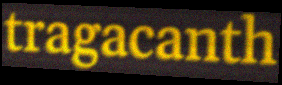
tragacanth